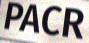
PACR